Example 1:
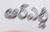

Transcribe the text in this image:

ఆర్ఎల్డీ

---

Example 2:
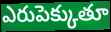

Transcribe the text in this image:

ఎరుపెక్కుతూ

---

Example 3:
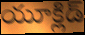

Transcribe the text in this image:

యూక్లిడ్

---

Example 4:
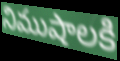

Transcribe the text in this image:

నిముషాలకి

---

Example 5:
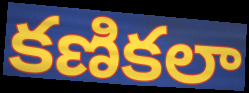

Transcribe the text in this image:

కణికలా